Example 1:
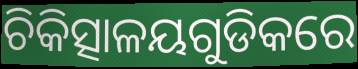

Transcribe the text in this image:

ଚିକିତ୍ସାଳୟଗୁଡିକରେ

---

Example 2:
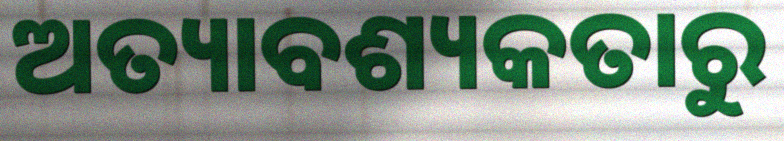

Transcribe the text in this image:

ଅତ୍ୟାବଶ୍ୟକତାରୁ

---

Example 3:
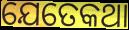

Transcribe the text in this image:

ଯେତେକଥା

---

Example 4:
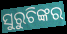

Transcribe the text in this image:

ସୁରୁଚିଙ୍କର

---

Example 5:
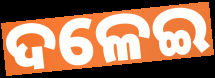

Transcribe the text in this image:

ଦଳେଇ